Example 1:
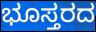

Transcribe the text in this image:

ಭೂಸ್ತರದ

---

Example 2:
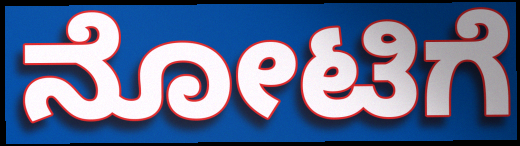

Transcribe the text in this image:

ನೋಟಿಗೆ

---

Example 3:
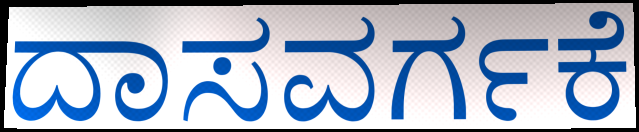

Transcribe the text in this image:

ದಾಸವರ್ಗಕೆ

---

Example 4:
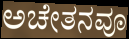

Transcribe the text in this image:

ಅಚೇತನವೂ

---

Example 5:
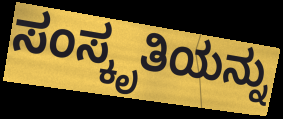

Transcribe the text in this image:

ಸಂಸ್ಕೃತಿಯನ್ನು